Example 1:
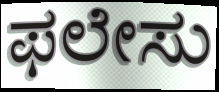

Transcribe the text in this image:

ಫಲೇಸು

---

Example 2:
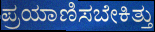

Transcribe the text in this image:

ಪ್ರಯಾಣಿಸಬೇಕಿತ್ತು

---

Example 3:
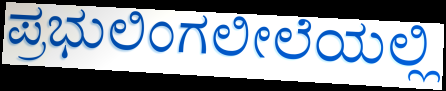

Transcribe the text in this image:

ಪ್ರಭುಲಿಂಗಲೀಲೆಯಲ್ಲಿ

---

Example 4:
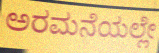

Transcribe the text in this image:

ಅರಮನೆಯಲ್ಲೇ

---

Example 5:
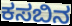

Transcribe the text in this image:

ಕಸಬಿನ